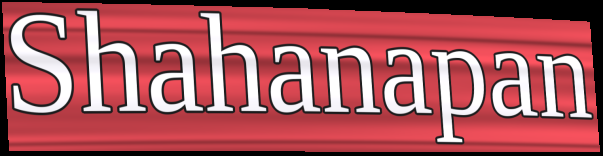
Shahanapan